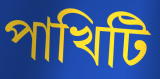
পাখিটি